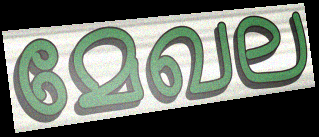
മേഖല